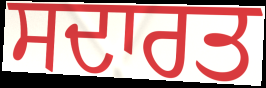
ਸਦਾਰਤ